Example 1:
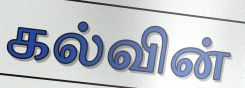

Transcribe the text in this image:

கல்வின்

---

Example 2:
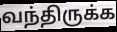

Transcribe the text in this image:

வந்திருக்க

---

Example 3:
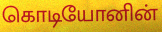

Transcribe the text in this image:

கொடியோனின்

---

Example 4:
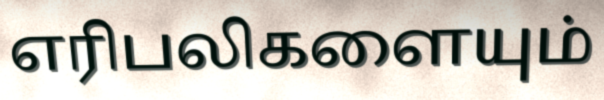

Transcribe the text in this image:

எரிபலிகளையும்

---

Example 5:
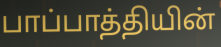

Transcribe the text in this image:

பாப்பாத்தியின்